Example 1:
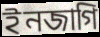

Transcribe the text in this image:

ইনজাগি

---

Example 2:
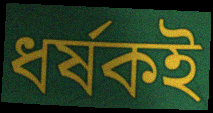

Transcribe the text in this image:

ধর্ষকই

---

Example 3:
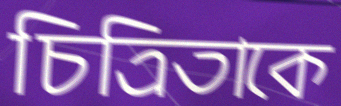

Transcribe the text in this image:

চিত্রিতাকে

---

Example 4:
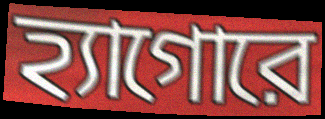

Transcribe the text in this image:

হ্যাগোরে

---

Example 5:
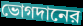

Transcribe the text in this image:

ভোগদানের